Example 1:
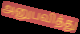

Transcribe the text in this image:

அனுபவித்து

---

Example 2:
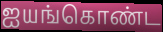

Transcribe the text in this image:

ஐயங்கொண்ட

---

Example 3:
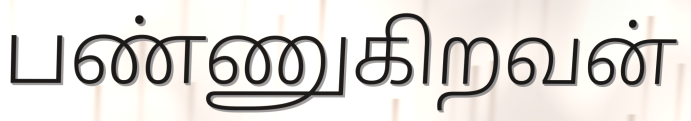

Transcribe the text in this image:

பண்ணுகிறவன்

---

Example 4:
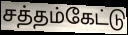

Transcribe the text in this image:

சத்தம்கேட்டு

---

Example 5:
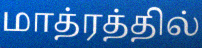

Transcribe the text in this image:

மாத்ரத்தில்